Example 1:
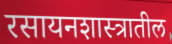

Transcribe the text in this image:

रसायनशास्त्रातील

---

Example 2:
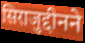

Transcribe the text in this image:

सिराजुद्दीनने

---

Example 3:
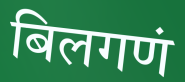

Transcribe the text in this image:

बिलगणं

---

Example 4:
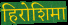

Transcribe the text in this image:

हिरोशिमा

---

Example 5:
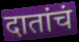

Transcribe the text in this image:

दातांचं